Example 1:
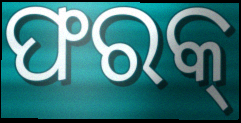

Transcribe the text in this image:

ଫରକ୍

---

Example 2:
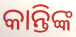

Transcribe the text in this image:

କାନ୍ତିଙ୍କ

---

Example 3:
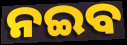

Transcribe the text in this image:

ନଇବ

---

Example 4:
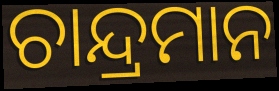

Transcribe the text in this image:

ଚାନ୍ଦ୍ରମାନ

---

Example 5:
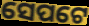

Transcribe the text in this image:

ସେପଟେ